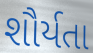
શૌર્યતા